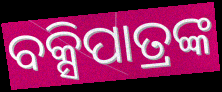
ବକ୍ସିପାତ୍ରଙ୍କ